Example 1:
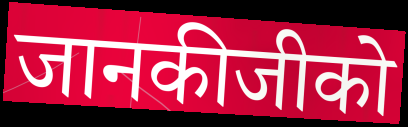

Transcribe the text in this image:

जानकीजीको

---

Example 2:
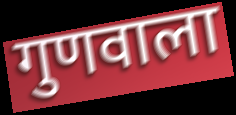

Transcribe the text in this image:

गुणवाला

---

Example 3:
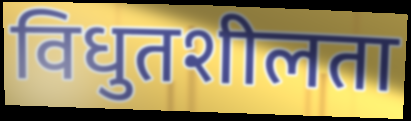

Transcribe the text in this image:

विधुतशीलता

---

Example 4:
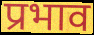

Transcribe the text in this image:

प्रभाव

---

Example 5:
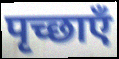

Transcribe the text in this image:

पृच्छाएँ